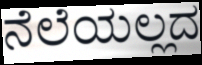
ನೆಲೆಯಲ್ಲದ